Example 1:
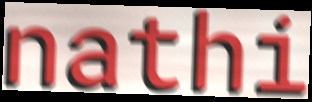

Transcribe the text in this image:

nathi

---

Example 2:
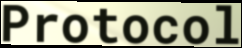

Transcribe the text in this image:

Protocol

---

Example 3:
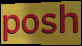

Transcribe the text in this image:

posh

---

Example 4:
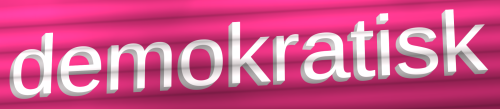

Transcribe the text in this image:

demokratisk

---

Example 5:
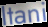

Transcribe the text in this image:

Itani